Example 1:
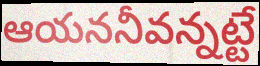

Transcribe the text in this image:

ఆయననీవన్నట్టే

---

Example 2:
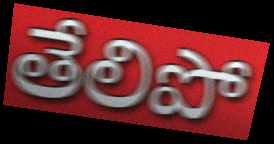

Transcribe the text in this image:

తేలిపో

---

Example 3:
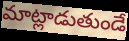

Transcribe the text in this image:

మాట్లాడుతుండే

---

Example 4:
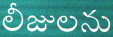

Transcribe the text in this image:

లీజులను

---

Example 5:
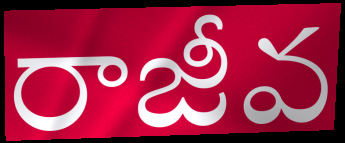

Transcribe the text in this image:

రాజీవ